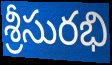
శ్రీసురభి